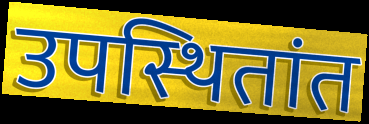
उपस्थितांत